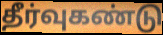
தீர்வுகண்டு